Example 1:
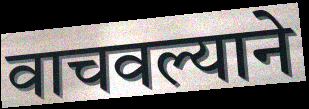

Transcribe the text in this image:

वाचवल्याने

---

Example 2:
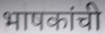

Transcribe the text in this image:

भाषकांची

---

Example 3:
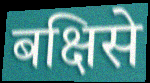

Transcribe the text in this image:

बक्षिसे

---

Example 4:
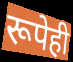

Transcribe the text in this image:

रूपेही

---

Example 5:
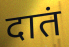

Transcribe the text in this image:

दातं